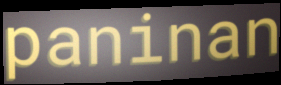
paninan